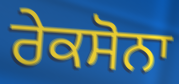
ਰੇਕਸੋਨਾ